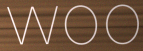
woo